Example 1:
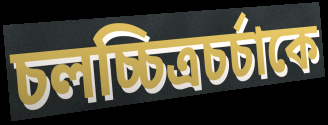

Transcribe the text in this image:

চলচ্চিত্রচর্চাকে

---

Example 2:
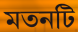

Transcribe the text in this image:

মতনটি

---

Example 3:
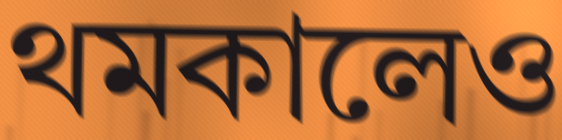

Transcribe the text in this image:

থমকালেও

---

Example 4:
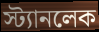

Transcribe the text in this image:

স্ট্যানলেক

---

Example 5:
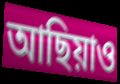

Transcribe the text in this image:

আছিয়াও